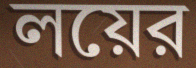
লয়ের